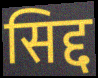
सिद्द